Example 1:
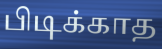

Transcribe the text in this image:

பிடிக்காத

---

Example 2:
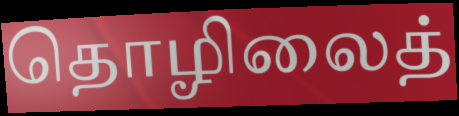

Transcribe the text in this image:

தொழிலைத்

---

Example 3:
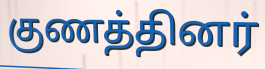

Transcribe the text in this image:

குணத்தினர்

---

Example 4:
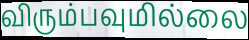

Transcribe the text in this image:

விரும்பவுமில்லை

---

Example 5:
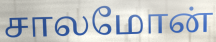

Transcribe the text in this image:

சாலமோன்